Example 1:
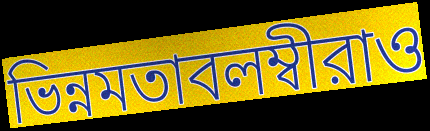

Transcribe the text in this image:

ভিন্নমতাবলম্বীরাও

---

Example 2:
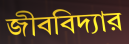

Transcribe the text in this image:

জীববিদ্যার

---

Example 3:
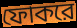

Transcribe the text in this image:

ফোকরে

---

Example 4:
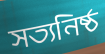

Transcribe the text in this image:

সত্যনিষ্ঠ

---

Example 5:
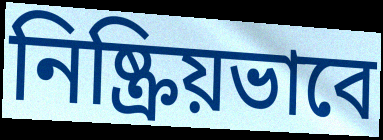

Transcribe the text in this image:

নিষ্ক্রিয়ভাবে